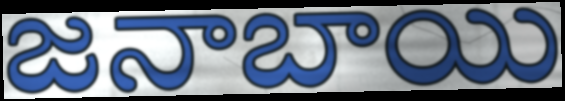
జనాబాయి